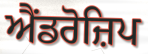
ਐਂਡਰੋਜ਼ਿਪ